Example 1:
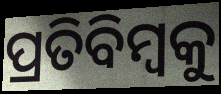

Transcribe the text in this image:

ପ୍ରତିବିମ୍ବକୁ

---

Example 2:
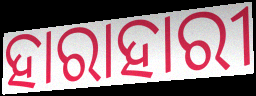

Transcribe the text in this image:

ହାରାହାରୀ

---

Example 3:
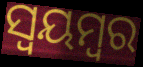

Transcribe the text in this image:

ସ୍ଵୟମ୍ବର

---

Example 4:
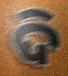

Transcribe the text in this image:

ଦି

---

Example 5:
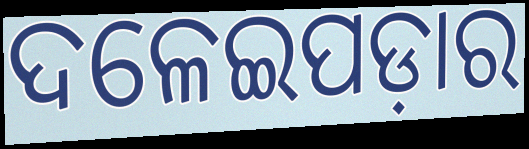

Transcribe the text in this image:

ଦଳେଇପଡ଼ାର